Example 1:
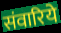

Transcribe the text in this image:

संवारिये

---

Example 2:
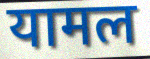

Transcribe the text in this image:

यामल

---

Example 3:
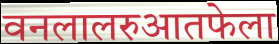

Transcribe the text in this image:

वनलालरुआतफेला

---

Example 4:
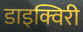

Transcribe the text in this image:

डाइक्विरी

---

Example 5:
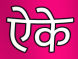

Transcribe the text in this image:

ऐके